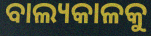
ବାଲ୍ୟକାଳକୁ